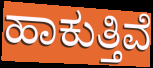
ಹಾಕುತ್ತಿವೆ